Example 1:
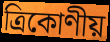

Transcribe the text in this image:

ত্ৰিকোণীয়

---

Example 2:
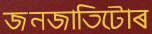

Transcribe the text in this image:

জনজাতিটোৰ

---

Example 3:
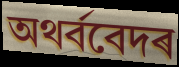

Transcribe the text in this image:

অথৰ্ববেদৰ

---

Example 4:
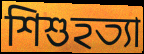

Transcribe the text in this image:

শিশুহত্যা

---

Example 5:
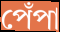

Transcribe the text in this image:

পেঁপা